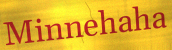
Minnehaha